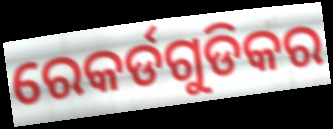
ରେକର୍ଡଗୁଡିକର